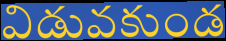
విడువకుండ